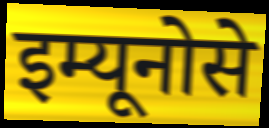
इम्यूनोसे